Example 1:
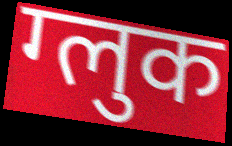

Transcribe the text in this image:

ग्लुक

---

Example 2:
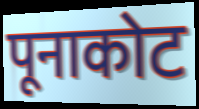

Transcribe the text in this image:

पूनाकोट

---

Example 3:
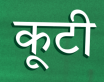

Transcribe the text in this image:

कूटी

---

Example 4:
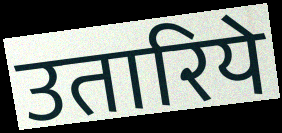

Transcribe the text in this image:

उतारिये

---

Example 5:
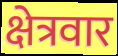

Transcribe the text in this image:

क्षेत्रवार